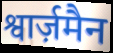
श्वार्ज़मैन